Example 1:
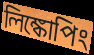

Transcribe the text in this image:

লিঙ্কোপিং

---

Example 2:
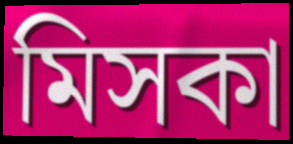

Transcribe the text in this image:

মিসকা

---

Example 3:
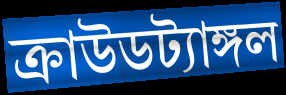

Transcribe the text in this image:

ক্রাউডট্যাঙ্গল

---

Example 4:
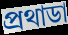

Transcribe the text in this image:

প্রথাডা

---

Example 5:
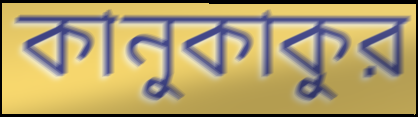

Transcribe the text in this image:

কানুকাকুর